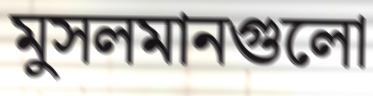
মুসলমানগুলো